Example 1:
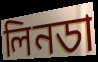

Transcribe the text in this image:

লিনডা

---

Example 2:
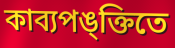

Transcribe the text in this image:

কাব্যপঙ্ক্তিতে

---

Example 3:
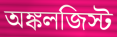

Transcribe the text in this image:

অঙ্কলজিস্ট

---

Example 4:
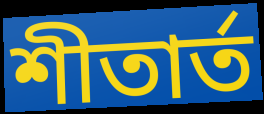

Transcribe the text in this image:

শীতার্ত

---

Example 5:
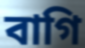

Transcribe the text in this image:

বাগি